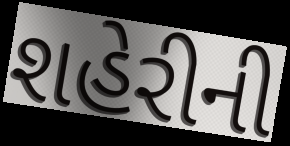
શહેરીની